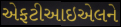
એફટીઆઇએલને